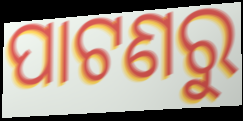
ପାଟଣରୁ